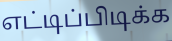
எட்டிப்பிடிக்க